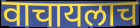
वाचायलाच